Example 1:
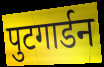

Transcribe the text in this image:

पुटगार्डन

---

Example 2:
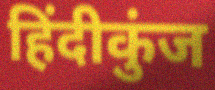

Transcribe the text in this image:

हिंदीकुंज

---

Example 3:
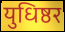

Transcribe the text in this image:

युधिष्ठर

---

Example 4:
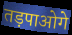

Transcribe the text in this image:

तड़पाओगे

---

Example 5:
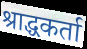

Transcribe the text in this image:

श्राद्धकर्ता